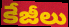
కేజీలు